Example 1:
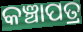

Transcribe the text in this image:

କଞ୍ଚାପତ୍ର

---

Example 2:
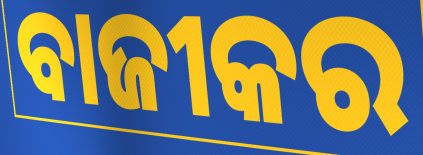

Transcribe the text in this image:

ବାଜୀକର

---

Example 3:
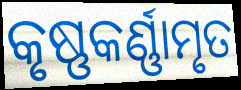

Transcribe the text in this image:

କୃଷ୍ଣକର୍ଣ୍ଣାମୃତ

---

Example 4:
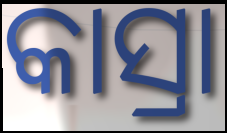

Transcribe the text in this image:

କାସ୍ରା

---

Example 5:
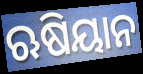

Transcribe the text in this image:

ଋଷିୟାନ